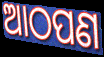
ଆଠପଣ